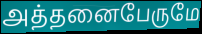
அத்தனைபேருமே